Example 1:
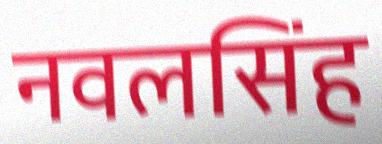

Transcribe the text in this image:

नवलसिंह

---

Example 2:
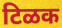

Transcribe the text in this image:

टिळक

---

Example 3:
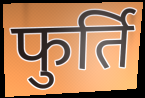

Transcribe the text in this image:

फुर्ति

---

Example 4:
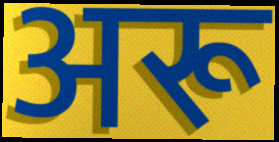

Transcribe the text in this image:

अरू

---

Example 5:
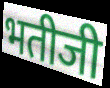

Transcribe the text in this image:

भतीजी